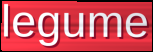
legume